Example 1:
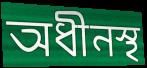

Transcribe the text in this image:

অধীনস্থ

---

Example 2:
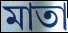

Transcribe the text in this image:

মাতা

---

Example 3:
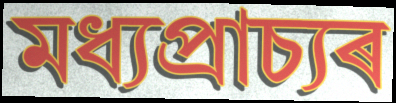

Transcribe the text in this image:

মধ্যপ্ৰাচ্যৰ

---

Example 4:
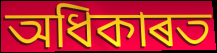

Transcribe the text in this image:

অধিকাৰত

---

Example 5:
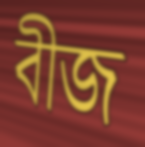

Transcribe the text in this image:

বীজ